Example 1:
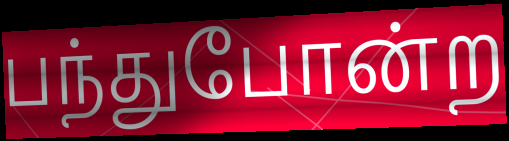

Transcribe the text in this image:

பந்துபோன்ற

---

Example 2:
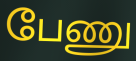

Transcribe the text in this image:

பேணு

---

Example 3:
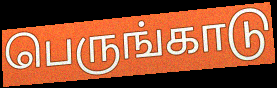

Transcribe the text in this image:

பெருங்காடு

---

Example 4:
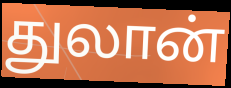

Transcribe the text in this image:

துலான்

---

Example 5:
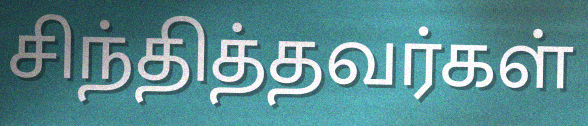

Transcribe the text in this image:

சிந்தித்தவர்கள்